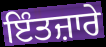
ਇੰਤਜ਼ਾਰੇ